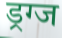
ड्रग्ज